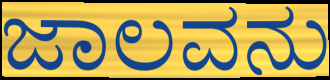
ಜಾಲವನು